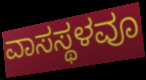
ವಾಸಸ್ಥಳವೂ